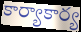
కార్యాకార్య